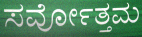
ಸರ್ವೋತ್ತಮ